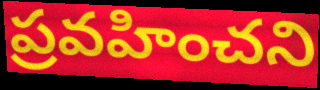
ప్రవహించని